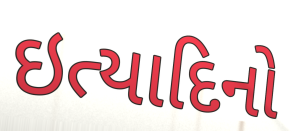
ઇત્યાદિનો